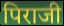
पिराजी